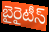
బైరైటీస్